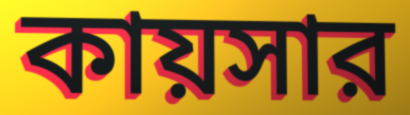
কায়সার